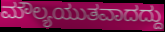
ಮೌಲ್ಯಯುತವಾದದ್ದು